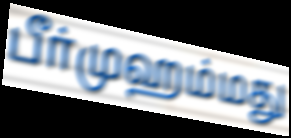
பீர்முஹம்மது